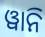
ୱାନି